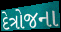
દેત્રોજના